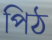
পিঠ